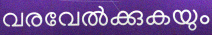
വരവേൽക്കുകയും